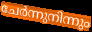
ചേർന്നുനിന്നും